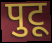
पुटू